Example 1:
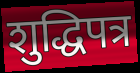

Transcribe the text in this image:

शुद्धिपत्र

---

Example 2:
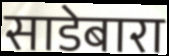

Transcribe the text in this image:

साडेबारा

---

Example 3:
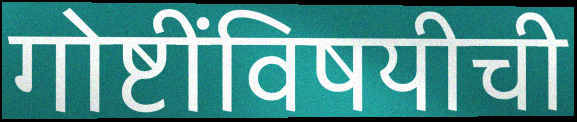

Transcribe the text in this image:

गोष्टींविषयीची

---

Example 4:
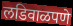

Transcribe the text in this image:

लडिवाळपणे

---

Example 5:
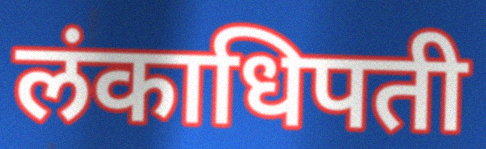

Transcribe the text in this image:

लंकाधिपती